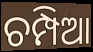
ଚମ୍ପିଆ